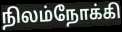
நிலம்நோக்கி